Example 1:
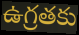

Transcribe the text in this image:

ఉగ్రతకు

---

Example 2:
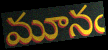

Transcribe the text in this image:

మూనఁ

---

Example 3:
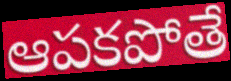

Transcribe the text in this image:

ఆపకపోతే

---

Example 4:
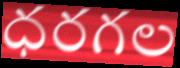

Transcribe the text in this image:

ధరగల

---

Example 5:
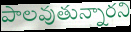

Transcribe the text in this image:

పాలవుతున్నారని